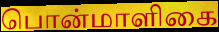
பொன்மாளிகை